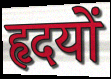
हृदयों